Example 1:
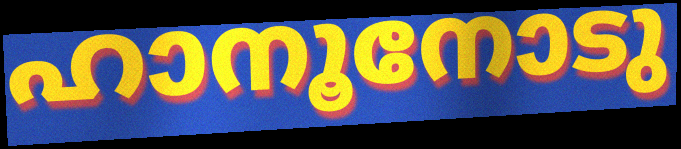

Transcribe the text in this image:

ഹാനൂനോടു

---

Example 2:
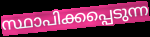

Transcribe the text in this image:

സ്ഥാപിക്കപ്പെടുന്ന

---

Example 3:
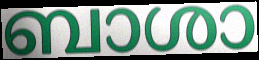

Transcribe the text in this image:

ബാശാ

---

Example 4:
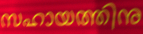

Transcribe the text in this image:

സഹായത്തിനു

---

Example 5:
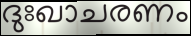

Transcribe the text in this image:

ദുഃഖാചരണം